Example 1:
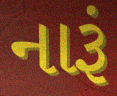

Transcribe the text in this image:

નારૂં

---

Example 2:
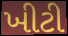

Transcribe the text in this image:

ખીટી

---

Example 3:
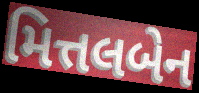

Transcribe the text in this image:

મિત્તલબેન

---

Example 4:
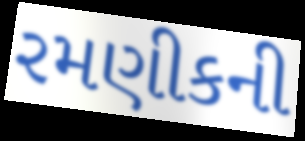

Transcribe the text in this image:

રમણીકની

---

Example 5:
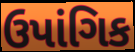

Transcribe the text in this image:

ઉપાંગિક